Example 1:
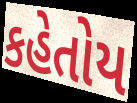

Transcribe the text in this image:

કહેતોય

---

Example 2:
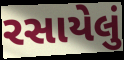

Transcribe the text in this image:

રસાયેલું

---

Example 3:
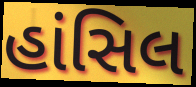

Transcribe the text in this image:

હાંસિલ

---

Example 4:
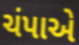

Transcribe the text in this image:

ચંપાએ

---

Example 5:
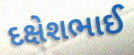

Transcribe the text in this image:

દક્ષેશભાઈ